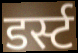
डर्स्ट